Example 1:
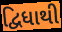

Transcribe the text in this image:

દ્વિધાથી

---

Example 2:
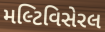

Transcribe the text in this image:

મલ્ટિવિસેરલ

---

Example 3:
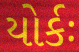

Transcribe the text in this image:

યોર્કઃ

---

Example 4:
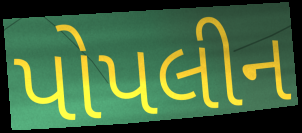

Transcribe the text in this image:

પોપલીન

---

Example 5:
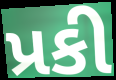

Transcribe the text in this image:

પ્રકી